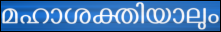
മഹാശക്തിയാലും